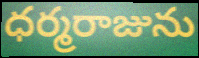
ధర్మరాజును